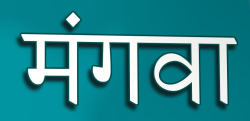
मंगवा